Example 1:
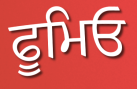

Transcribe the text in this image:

ਫੂਮਿਓ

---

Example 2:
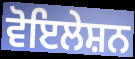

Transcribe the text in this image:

ਵੋਇਲੇਸ਼ਨ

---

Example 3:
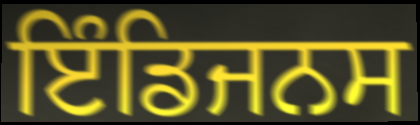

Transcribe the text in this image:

ਇੰਡਿਜਨਸ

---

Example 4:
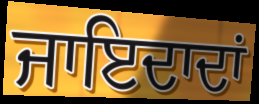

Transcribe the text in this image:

ਜਾਇਦਾਦਾਂ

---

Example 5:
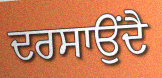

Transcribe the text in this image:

ਦਰਸਾਉਂਦੈ